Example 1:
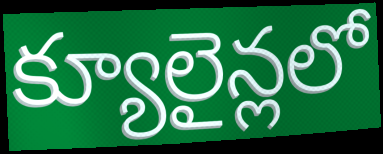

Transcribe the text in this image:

క్యూలైన్లలో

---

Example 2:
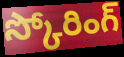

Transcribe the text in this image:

స్కోరింగ్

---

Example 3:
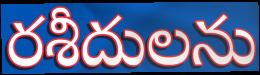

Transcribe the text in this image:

రశీదులను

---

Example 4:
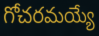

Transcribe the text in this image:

గోచరమయ్యే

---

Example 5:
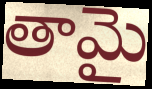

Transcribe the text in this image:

తామై